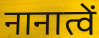
नानात्वें